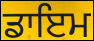
ਡਾਇਮ